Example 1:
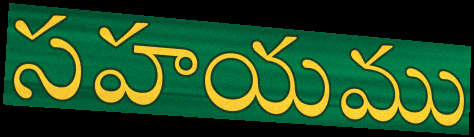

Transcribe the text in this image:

సహయము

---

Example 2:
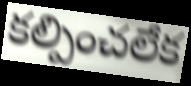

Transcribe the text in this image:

కల్పించలేక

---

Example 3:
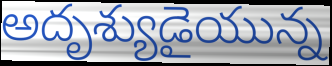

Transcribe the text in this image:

అదృశ్యుడైయున్న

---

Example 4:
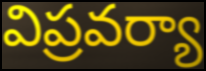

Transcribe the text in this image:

విప్రవర్యా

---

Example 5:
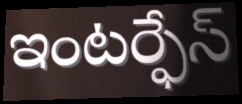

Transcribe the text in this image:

ఇంటర్ఫేస్